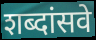
शब्दांसवे